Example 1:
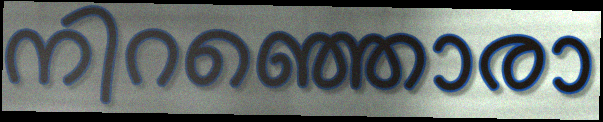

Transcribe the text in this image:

നിറഞ്ഞൊരാ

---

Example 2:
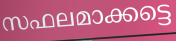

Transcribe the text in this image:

സഫലമാക്കട്ടെ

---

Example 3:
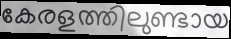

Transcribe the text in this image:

കേരളത്തിലുണ്ടായ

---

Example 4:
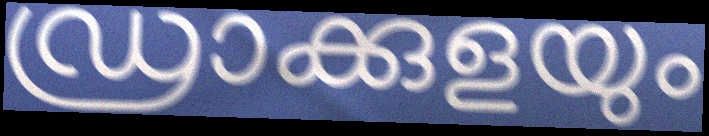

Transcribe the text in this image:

ഡ്രാക്കുളയും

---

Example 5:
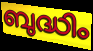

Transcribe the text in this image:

ബുദ്ധിം